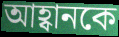
আহ্বানকে